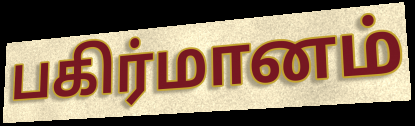
பகிர்மானம்